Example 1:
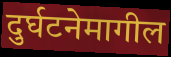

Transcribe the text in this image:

दुर्घटनेमागील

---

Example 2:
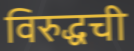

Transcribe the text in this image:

विरुद्धची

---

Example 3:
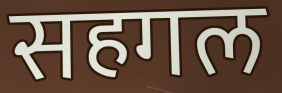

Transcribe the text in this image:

सहगल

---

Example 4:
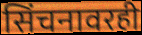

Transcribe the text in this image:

सिंचनावरही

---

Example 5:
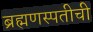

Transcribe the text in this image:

ब्रह्मणस्पतीची